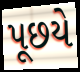
પૂછયે